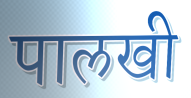
पालखी